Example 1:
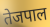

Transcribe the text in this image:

तेजपाल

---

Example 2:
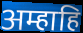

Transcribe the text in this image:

अम्हाहि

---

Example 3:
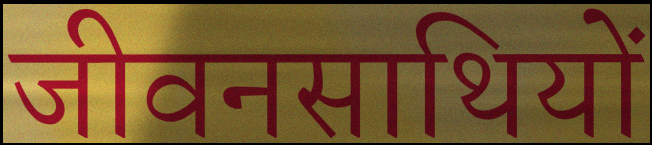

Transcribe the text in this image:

जीवनसाथियों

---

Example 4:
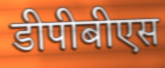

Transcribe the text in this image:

डीपीबीएस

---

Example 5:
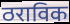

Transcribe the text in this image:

ठराविक